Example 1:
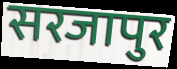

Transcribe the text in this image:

सरजापुर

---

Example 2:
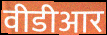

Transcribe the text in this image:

वीडीआर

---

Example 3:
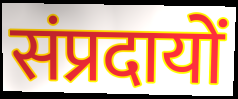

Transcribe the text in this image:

संप्रदायों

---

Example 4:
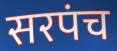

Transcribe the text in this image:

सरपंच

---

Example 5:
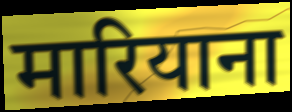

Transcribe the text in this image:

मारियाना